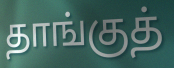
தாங்குத்